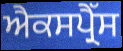
ਐਕਸਪ੍ਰੈੱਸ